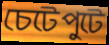
চেটেপুটে